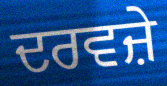
ਦਰਵਜ਼ੇ